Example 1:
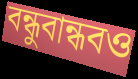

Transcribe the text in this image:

বন্ধুবান্ধবও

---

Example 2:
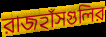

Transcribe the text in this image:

রাজহাঁসগুলির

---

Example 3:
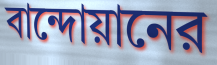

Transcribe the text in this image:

বান্দোয়ানের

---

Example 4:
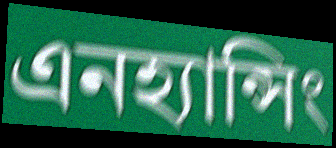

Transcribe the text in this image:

এনহ্যান্সিং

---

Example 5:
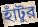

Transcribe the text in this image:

হাঁটুর